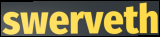
swerveth